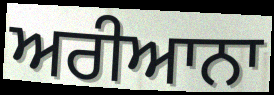
ਅਰੀਆਨਾ